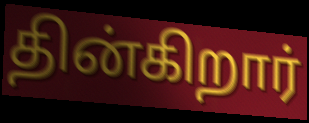
தின்கிறார்